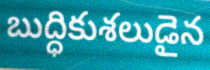
బుద్ధికుశలుడైన